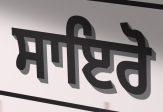
ਸਾਇਰੋ